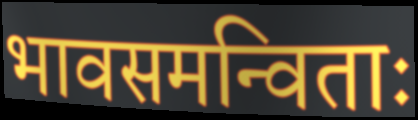
भावसमन्विताः